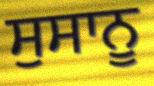
ਸੁਸਾਨੂ